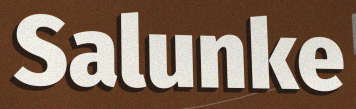
Salunke